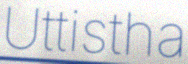
Uttistha